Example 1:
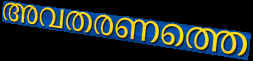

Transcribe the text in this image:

അവതരണത്തെ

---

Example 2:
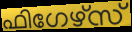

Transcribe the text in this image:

ഫിഗേഴ്സ്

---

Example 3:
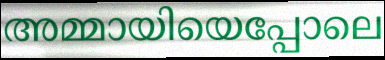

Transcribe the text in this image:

അമ്മായിയെപ്പോലെ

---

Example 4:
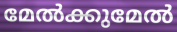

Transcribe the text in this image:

മേൽക്കുമേൽ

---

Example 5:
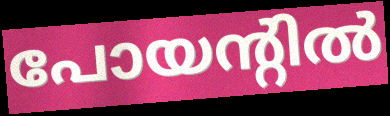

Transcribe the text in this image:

പോയന്റിൽ